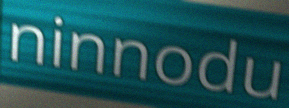
ninnodu